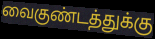
வைகுண்டத்துக்கு